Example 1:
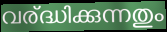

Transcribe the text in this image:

വര്ദ്ധിക്കുന്നതും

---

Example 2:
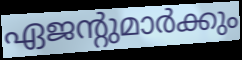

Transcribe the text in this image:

ഏജന്റുമാർക്കും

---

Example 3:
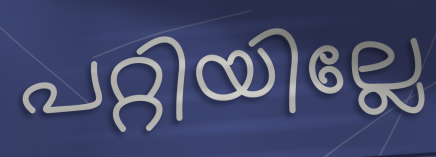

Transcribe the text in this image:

പറ്റിയില്ലേ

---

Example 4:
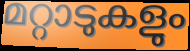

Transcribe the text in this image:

മറ്റാടുകളും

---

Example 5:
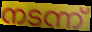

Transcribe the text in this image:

നടന്ന്